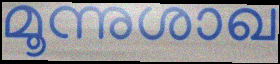
മൂന്നുശാഖ